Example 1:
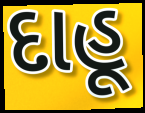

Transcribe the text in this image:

દાહૂ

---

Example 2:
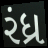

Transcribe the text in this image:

રંધ્ર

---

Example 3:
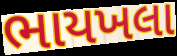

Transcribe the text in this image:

ભાયખલા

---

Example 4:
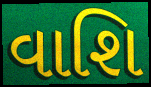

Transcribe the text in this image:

વાશિ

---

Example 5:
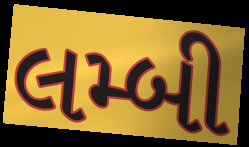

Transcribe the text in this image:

લમ્બી